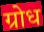
ग्रोध